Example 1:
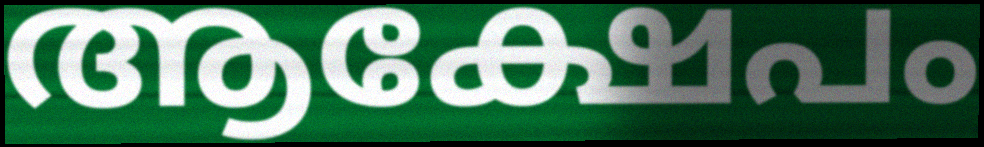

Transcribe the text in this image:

ആക്ഷേപം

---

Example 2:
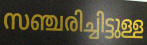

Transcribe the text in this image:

സഞ്ചരിച്ചിട്ടുള്ള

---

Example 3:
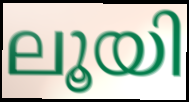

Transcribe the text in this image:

ലൂയി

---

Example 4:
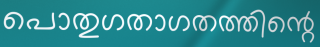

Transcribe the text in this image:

പൊതുഗതാഗതത്തിന്റെ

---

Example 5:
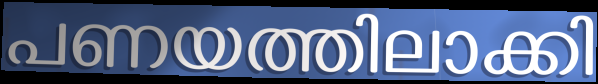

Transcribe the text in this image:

പണയത്തിലാക്കി